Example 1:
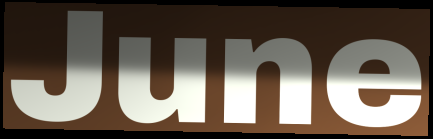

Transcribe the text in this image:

June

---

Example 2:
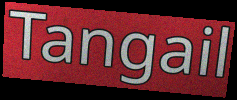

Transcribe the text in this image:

Tangail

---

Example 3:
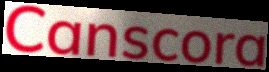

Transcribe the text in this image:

Canscora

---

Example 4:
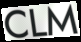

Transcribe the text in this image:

CLM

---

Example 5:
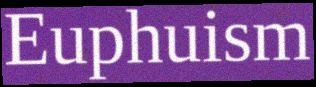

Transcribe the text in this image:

Euphuism